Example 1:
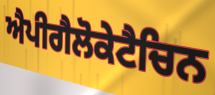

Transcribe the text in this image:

ਐਪੀਗੈਲੋਕੇਟੈਚਿਨ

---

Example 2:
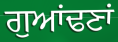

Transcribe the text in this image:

ਗੁਆਂਢਣਾਂ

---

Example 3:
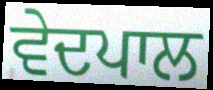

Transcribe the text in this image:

ਵੇਦਪਾਲ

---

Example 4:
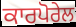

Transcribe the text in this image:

ਕਾਰਪੋਰੇਲ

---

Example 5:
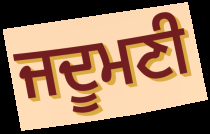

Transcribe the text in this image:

ਜਦੂਮਣੀ